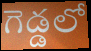
గెడ్డలో